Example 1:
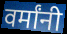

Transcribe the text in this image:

वर्मांनी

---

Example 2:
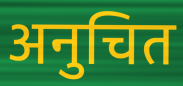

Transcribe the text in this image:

अनुचित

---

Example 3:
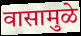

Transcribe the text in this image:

वासामुळे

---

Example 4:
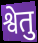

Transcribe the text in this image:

श्वेतु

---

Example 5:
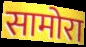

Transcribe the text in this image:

सामोरा